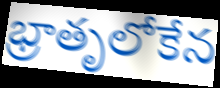
భ్రాతృలోకేన